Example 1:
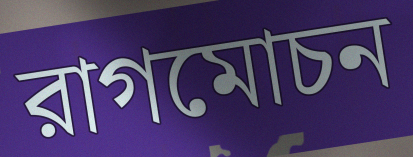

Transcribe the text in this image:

রাগমোচন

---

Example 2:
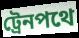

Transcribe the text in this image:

ট্রেনপথে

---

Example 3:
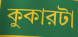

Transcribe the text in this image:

কুকারটা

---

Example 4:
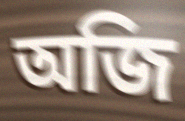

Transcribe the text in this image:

অজি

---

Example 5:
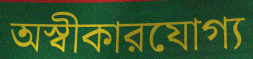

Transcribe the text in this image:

অস্বীকারযোগ্য